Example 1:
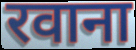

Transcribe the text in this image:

रवाना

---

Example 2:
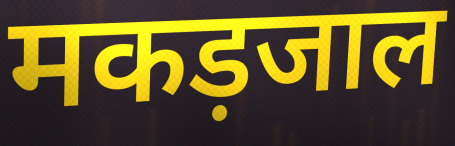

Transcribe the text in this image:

मकड़जाल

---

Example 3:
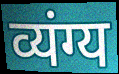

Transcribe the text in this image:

व्यंग्य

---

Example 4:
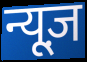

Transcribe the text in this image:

न्यूज़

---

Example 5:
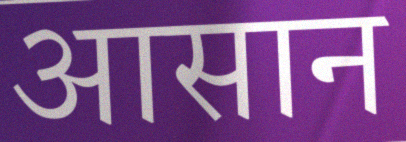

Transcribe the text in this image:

आसान